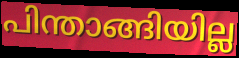
പിന്താങ്ങിയില്ല